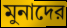
মুনাদের